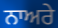
ਨਾਅਰੇ